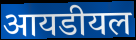
आयडीयल